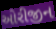
ઓરીજીન